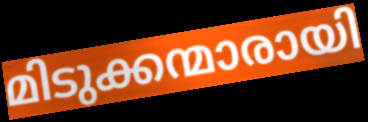
മിടുക്കന്മാരായി